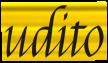
udito